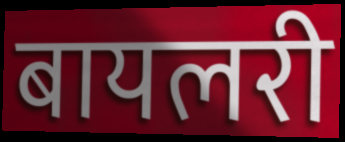
बायलरी